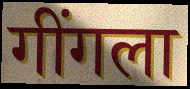
गींगला